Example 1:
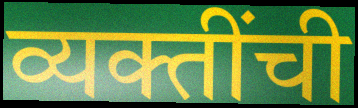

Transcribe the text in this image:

व्यक्‍तींची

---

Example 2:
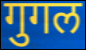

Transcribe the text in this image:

गुगल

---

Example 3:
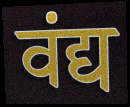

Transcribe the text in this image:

वंद्य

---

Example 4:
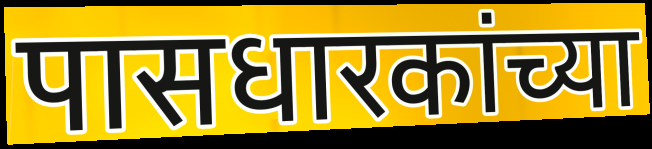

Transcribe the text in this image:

पासधारकांच्या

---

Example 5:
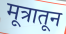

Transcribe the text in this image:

मूत्रातून